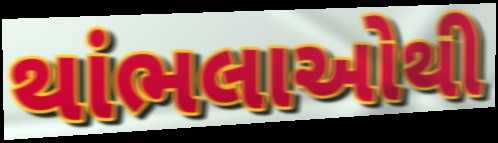
થાંભલાઓથી